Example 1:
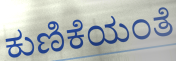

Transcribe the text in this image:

ಕುಣಿಕೆಯಂತೆ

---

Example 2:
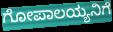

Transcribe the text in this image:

ಗೋಪಾಲಯ್ಯನಿಗೆ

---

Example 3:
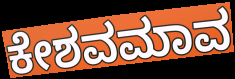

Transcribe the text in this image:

ಕೇಶವಮಾವ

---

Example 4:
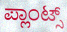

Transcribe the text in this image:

ಪ್ಲಾಂಟ್ಸ್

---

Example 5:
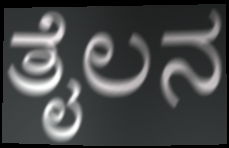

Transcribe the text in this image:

ತೈಲನ